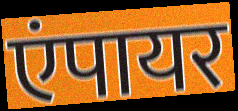
एंपायर